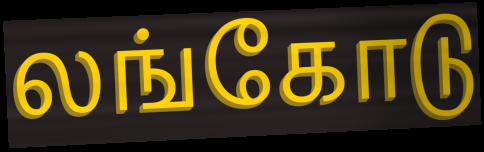
லங்கோடு